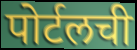
पोर्टलची